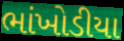
ભાંખોડીયા